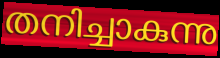
തനിച്ചാകുന്നു